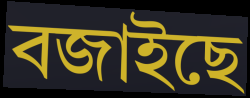
বজাইছে